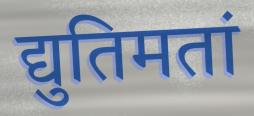
द्युतिमतां